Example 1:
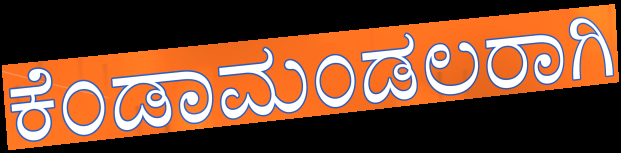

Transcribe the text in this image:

ಕೆಂಡಾಮಂಡಲರಾಗಿ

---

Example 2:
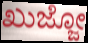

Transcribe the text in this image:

ಖುಜ್ಜೋ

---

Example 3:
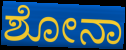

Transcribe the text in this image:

ಶೋನಾ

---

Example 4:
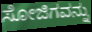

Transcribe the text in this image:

ಸೋಜಿಗವನ್ನು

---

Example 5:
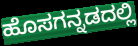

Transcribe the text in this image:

ಹೊಸಗನ್ನಡದಲ್ಲಿ